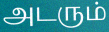
அடரும்